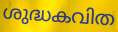
ശുദ്ധകവിത